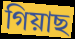
গিয়াছ